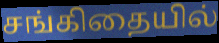
சங்கிதையில்